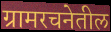
ग्रामरचनेतील